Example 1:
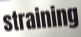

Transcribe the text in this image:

straining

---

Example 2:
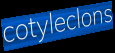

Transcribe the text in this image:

cotyleclons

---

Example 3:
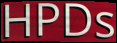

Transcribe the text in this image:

HPDs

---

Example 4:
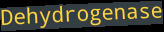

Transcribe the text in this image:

Dehydrogenase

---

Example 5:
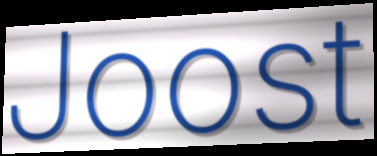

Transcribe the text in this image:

Joost